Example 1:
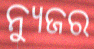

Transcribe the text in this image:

ନ୍ୟୁଜର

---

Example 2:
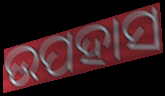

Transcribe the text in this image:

ଉପହାସ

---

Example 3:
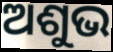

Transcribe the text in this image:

ଅଶୁଭ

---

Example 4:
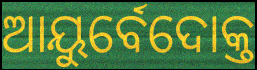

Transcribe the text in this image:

ଆୟୁର୍ବେଦୋକ୍ତ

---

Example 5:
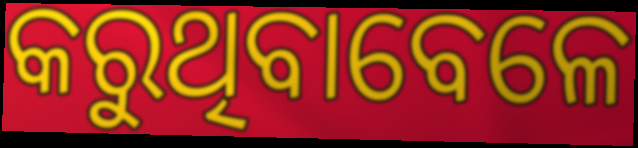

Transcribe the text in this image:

କରୁଥିବାବେଳେ